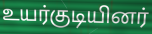
உயர்குடியினர்